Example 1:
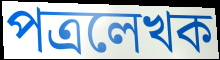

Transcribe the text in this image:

পত্রলেখক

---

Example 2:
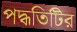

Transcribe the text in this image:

পদ্ধতিটির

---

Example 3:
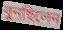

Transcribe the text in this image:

বুনছিলেন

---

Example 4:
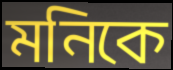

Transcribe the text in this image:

মনিকে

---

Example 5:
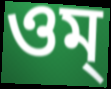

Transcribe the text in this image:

ওম্